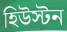
হিউস্টন